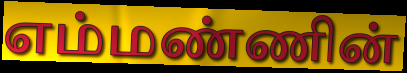
எம்மண்ணின்